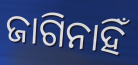
ଜାଗିନାହିଁ